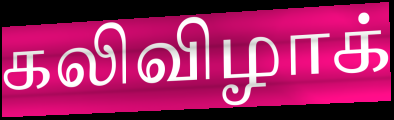
கலிவிழாக்